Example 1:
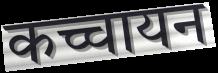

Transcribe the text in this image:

कच्चायन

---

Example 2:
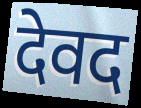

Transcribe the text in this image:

देवद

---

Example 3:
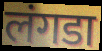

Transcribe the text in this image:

लंगडा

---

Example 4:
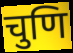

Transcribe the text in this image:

चुणि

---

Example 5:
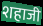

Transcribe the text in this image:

शहाजी